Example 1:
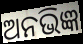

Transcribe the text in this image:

ଅନଭିଜ୍ଞ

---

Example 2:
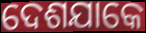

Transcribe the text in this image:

ଦେଶଯାକେ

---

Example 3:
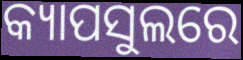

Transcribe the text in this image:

କ୍ୟାପସୁଲରେ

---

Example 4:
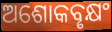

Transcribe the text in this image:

ଅଶୋକବୃକ୍ଷଂ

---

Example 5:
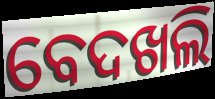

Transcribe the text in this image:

ବେଦଖଲି